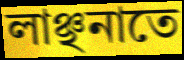
লাঞ্ছনাতে